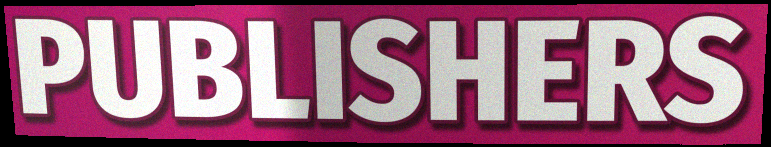
PUBLISHERS